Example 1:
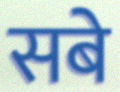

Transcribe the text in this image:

सबे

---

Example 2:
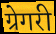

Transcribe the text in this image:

ग्रेगरी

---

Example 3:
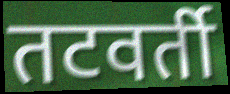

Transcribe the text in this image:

तटवर्ती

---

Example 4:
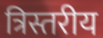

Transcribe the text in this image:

त्रिस्तरीय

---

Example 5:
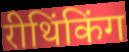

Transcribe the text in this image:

रीथिंकिंग